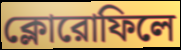
ক্লোরোফিলে